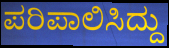
ಪರಿಪಾಲಿಸಿದ್ದು